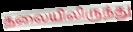
தலையிலிருந்து